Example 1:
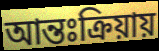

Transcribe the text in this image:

আন্তঃক্রিয়ায়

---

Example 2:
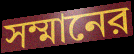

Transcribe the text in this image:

সম্মানের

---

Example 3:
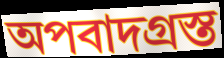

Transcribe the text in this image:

অপবাদগ্রস্ত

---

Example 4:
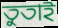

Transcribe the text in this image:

তুতাই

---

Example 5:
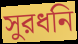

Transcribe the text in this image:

সুরধনি